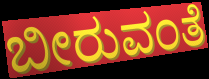
ಬೀರುವಂತೆ